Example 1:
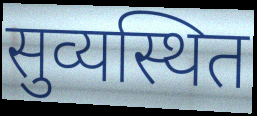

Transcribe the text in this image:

सुव्यस्थित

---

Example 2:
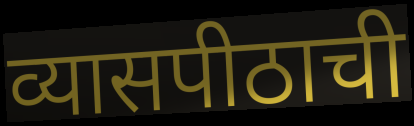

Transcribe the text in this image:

व्यासपीठाची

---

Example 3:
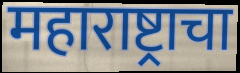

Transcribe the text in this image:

महाराष्ट्राचा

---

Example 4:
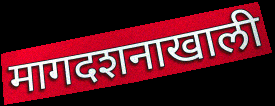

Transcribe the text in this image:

मागदशनाखाली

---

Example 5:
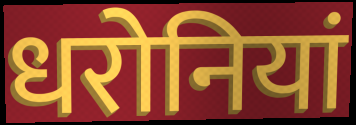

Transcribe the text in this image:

धरोनियां